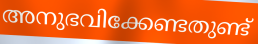
അനുഭവിക്കേണ്ടതുണ്ട്